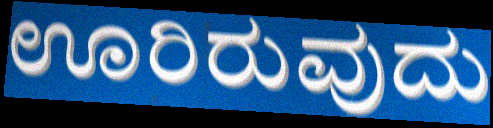
ಊರಿರುವುದು